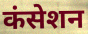
कंसेशन